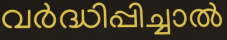
വർദ്ധിപ്പിച്ചാൽ